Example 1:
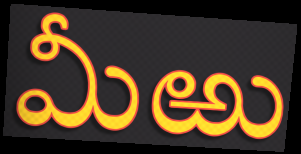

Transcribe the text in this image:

మీఱు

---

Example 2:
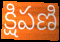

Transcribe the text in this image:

క్షిపణి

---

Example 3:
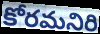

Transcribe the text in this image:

కోరమనిరి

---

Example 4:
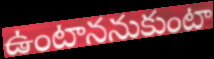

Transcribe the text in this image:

ఉంటాననుకుంటా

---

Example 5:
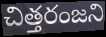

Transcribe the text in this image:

చిత్తరంజని